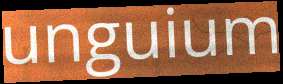
unguium